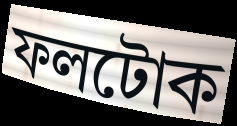
ফলটোক